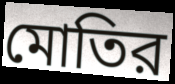
মোতির